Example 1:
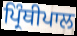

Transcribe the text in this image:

ਪ੍ਰਿੰਥੀਪਾਲ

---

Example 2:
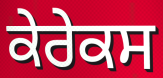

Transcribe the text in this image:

ਕੇਰੇਕਸ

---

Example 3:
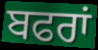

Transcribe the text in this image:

ਬਫਰਾਂ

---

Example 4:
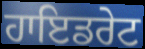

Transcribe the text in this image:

ਹਾਇਡਰੇਟ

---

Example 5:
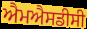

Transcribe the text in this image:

ਐਮਐਸਡੀਸੀ